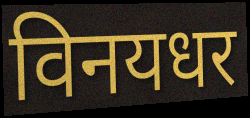
विनयधर